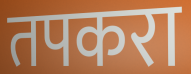
तपकरा